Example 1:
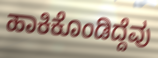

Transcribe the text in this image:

ಹಾಕಿಕೊಂಡಿದ್ದೆವು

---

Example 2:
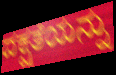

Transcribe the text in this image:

ದಕ್ಷತೆಯನ್ನು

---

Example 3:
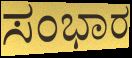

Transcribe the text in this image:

ಸಂಭಾರ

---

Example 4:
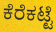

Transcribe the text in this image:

ಕೆರೆಕಟ್ಟೆ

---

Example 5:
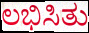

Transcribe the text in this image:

ಲಭಿಸಿತು